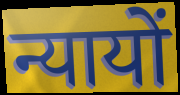
न्यायों